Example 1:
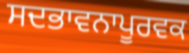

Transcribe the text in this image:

ਸਦਭਾਵਨਾਪੂਰਵਕ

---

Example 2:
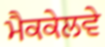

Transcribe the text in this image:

ਮੈਕਕੇਲਵੇ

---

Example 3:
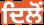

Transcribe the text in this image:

ਦਿਲੋਂ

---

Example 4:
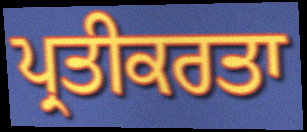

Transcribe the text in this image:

ਪ੍ਰਤੀਕਰਤਾ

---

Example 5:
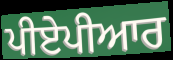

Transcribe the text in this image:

ਪੀਏਪੀਆਰ